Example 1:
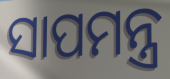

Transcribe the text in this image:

ସାପମନ୍ତ୍ର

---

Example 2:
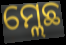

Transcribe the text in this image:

ମ୍ଲେଛ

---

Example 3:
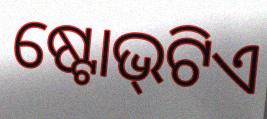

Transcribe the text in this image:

ଷ୍ଟୋଭ୍‌ଟିଏ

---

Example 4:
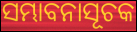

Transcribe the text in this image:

ସମ୍ଭାବନାସୂଚକ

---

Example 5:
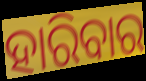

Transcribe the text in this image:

ହାରିବାର